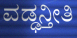
ವಡ್ಢನ್ತೀತಿ